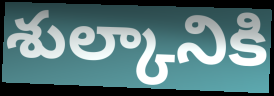
శుల్కానికి